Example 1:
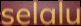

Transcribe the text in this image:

selalu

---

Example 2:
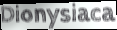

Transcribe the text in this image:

Dionysiaca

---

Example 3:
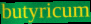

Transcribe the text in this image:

butyricum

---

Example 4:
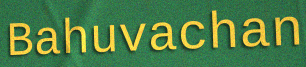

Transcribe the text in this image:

Bahuvachan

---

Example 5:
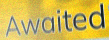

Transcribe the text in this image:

Awaited